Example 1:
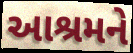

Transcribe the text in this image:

આશ્રમને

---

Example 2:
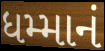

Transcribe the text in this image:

ધમ્માનં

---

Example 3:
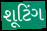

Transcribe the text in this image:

શૂટિંગ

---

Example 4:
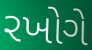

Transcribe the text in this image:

રખોગે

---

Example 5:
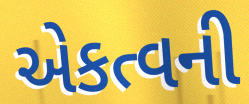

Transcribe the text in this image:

એકત્વની